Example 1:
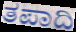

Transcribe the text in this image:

ತಪಾದಿ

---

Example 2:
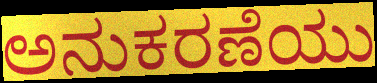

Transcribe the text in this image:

ಅನುಕರಣೆಯು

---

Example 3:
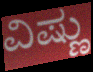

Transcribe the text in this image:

ವಿಷ್ಣು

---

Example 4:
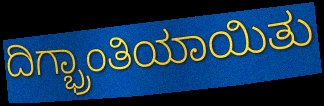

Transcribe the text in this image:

ದಿಗ್ಭ್ರಾಂತಿಯಾಯಿತು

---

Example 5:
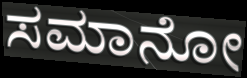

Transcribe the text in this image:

ಸಮಾನೋ